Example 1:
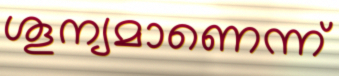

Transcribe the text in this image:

ശൂന്യമാണെന്ന്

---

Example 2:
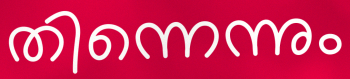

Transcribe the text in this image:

തിന്നെന്നും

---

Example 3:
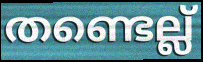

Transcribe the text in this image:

തണ്ടെല്ല്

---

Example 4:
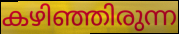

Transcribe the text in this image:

കഴിഞ്ഞിരുന്ന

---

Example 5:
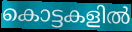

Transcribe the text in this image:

കൊട്ടകളിൽ